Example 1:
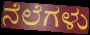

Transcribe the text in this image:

ನೆಲೆಗಳು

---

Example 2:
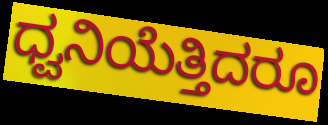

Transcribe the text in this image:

ಧ್ವನಿಯೆತ್ತಿದರೂ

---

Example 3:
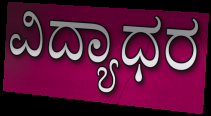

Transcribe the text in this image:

ವಿದ್ಯಾಧರ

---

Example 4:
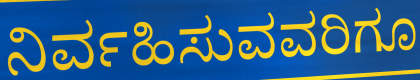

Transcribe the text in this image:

ನಿರ್ವಹಿಸುವವರಿಗೂ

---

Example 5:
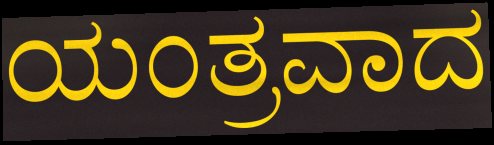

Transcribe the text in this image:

ಯಂತ್ರವಾದ